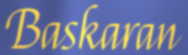
Baskaran